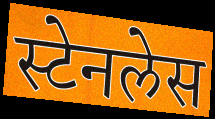
स्टेनलेस